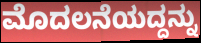
ಮೊದಲನೆಯದ್ದನ್ನು